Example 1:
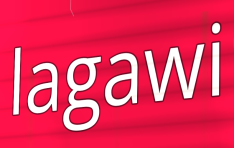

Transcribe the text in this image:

lagawi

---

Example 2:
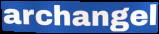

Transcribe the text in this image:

archangel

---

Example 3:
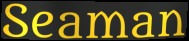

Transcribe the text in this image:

Seaman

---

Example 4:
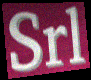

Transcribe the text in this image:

Srl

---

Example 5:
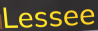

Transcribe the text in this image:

Lessee